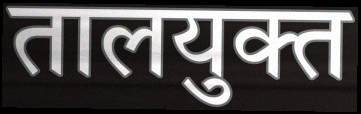
तालयुक्त